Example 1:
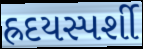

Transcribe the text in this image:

હ્રદયસ્પર્શી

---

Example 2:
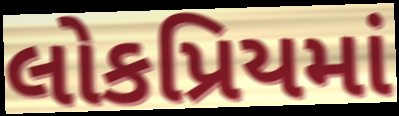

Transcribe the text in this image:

લોકપ્રિયમાં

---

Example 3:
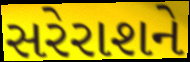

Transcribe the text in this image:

સરેરાશને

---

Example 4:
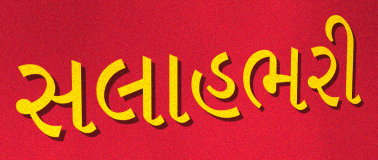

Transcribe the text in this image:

સલાહભરી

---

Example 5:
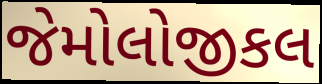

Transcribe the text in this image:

જેમોલોજીકલ